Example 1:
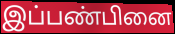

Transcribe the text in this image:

இப்பண்பினை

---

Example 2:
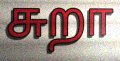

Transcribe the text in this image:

சுறா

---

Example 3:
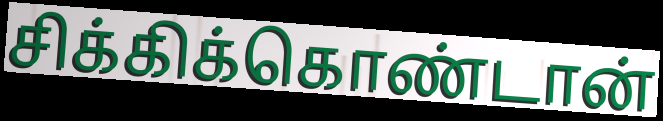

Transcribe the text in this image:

சிக்கிக்கொண்டான்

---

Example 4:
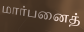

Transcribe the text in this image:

மார்பனைத்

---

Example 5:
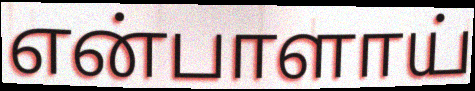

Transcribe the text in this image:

என்பாளாய்